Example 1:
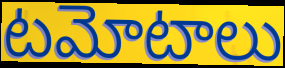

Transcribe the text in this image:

టమోటాలు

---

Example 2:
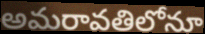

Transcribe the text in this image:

అమరావతిలోనూ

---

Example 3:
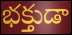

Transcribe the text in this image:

భక్తుడా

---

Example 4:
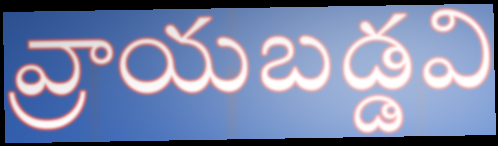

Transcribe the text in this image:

వ్రాయబడ్డవి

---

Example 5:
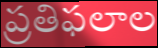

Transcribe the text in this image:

ప్రతిఫలాల